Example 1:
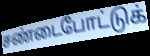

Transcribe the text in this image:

சண்டைபோட்டுக்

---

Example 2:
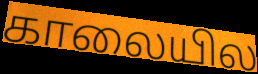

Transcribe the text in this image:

காலையில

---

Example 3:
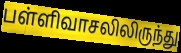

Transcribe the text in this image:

பள்ளிவாசலிலிருந்து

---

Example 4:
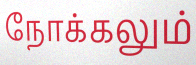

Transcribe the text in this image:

நோக்கலும்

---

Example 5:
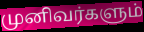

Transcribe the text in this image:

முனிவர்களும்